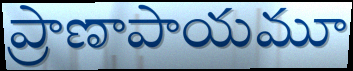
ప్రాణాపాయమూ